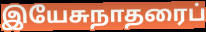
இயேசுநாதரைப்